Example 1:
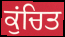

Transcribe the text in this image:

ਕੁਂਚਿਤ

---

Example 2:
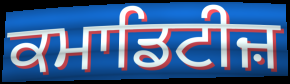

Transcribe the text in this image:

ਕਮਾਡਿਟੀਜ਼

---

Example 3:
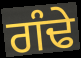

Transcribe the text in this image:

ਗੰਢੇ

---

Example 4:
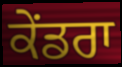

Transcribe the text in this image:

ਕੇਂਡਰਾ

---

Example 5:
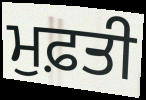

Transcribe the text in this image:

ਮੁਫ਼ਤੀ